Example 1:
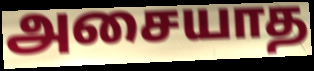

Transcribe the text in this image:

அசையாத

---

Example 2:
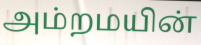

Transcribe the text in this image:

அம்றமயின்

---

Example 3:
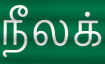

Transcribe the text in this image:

நீலக்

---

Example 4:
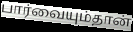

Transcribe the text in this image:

பார்வையும்தான்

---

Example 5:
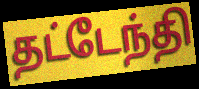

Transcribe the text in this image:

தட்டேந்தி